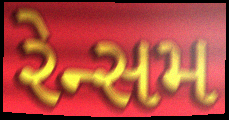
રેન્સમ